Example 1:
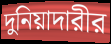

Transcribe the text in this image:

দুনিয়াদারীর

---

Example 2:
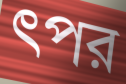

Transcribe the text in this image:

ৎপর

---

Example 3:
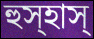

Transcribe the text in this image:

হুস্হাস্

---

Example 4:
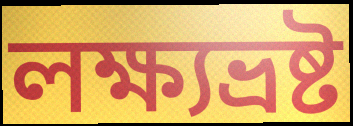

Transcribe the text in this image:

লক্ষ্যভ্রষ্ট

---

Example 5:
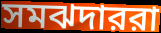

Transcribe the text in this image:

সমঝদাররা